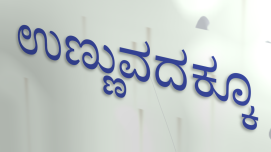
ಉಣ್ಣುವದಕ್ಕೂ